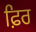
ਫ਼ਿਰ